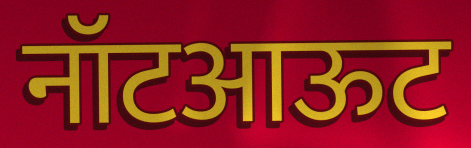
नॉटआऊट